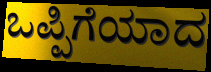
ಒಪ್ಪಿಗೆಯಾದ